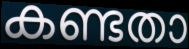
കണ്ടതാ